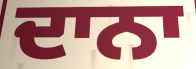
ਦਾਨਾ